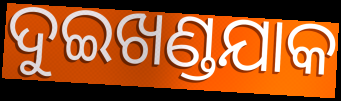
ଦୁଇଖଣ୍ଡଯାକ